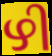
ഴി